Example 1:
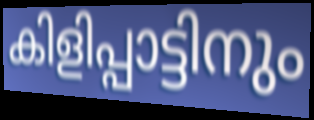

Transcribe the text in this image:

കിളിപ്പാട്ടിനും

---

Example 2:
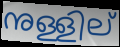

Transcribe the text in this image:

നുള്ളില്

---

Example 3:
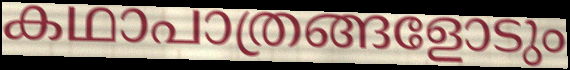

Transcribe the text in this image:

കഥാപാത്രങ്ങളോടും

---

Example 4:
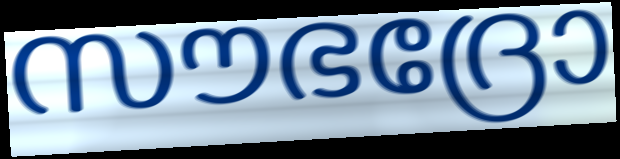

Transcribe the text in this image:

സൗഭദ്രോ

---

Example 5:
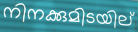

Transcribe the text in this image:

നിനക്കുമിടയില്